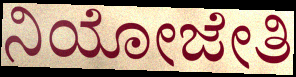
ನಿಯೋಜೇತಿ